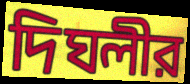
দিঘলীর